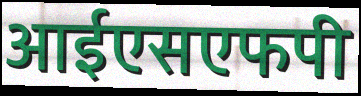
आईएसएफपी